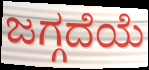
ಜಗ್ಗದೆಯೆ